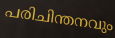
പരിചിന്തനവും